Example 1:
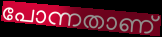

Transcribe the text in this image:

പോന്നതാണ്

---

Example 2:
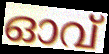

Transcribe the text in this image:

ഓവ്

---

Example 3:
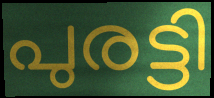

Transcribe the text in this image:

പുരട്ടി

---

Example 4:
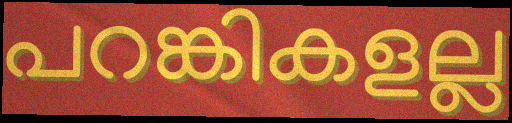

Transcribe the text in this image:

പറങ്കികളല്ല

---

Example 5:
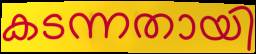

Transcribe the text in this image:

കടന്നതായി